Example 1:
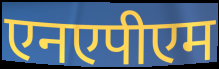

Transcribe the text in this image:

एनएपीएम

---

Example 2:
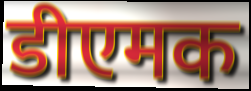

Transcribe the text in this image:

डीएमक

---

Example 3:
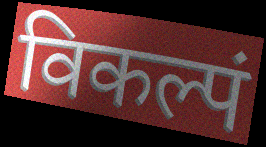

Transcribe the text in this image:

विकल्पं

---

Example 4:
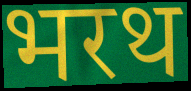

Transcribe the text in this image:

भरथ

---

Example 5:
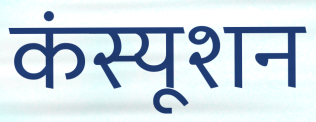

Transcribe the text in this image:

कंस्यूशन